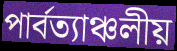
পার্বত্যাঞ্চলীয়